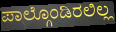
ಪಾಲ್ಗೊಂಡಿರಲಿಲ್ಲ